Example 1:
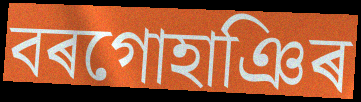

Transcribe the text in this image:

বৰগোহাঞিৰ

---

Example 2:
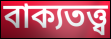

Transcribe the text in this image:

বাক্যতত্ত্ব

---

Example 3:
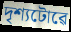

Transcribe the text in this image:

দৃশ্যটোৱে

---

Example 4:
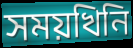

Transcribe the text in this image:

সময়খিনি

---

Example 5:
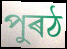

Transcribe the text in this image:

পুৰঠ